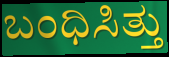
ಬಂಧಿಸಿತ್ತು